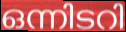
ഒന്നിടറി